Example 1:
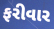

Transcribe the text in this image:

ફરીવાર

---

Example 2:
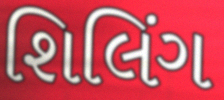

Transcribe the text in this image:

શિલિંગ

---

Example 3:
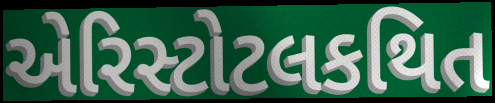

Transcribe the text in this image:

એરિસ્ટોટલકથિત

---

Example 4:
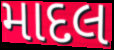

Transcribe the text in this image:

માદલ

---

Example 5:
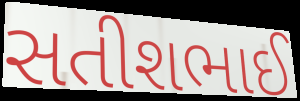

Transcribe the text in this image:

સતીશભાઈ